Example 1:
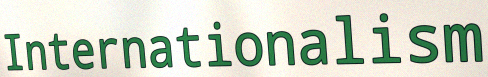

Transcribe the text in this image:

Internationalism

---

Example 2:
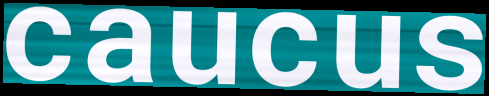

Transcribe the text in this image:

caucus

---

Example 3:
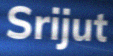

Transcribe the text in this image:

Srijut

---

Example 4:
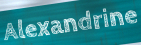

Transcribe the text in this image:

Alexandrine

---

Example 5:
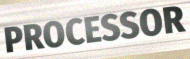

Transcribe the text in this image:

PROCESSOR